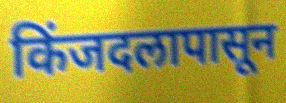
किंजदलापासून